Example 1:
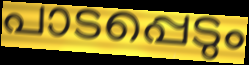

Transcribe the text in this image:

പാടപ്പെടും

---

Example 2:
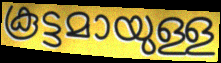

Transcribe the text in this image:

കൂട്ടമായുള്ള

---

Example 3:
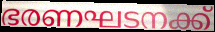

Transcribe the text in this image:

ഭരണഘടനക്ക്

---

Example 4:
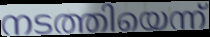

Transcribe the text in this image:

നടത്തിയെന്ന്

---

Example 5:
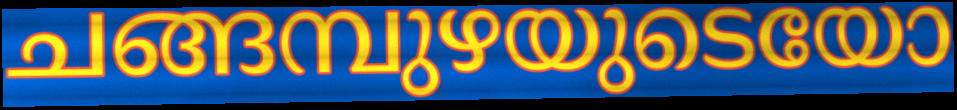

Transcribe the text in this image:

ചങ്ങമ്പുഴയുടെയോ